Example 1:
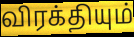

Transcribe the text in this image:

விரக்தியும்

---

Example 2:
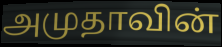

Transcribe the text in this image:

அமுதாவின்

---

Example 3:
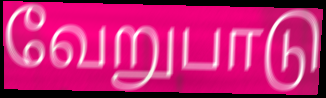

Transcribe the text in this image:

வேறுபாடு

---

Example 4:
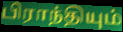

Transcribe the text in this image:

பிராந்தியும்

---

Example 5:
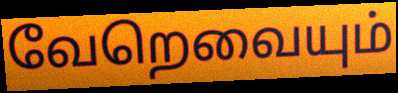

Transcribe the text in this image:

வேறெவையும்